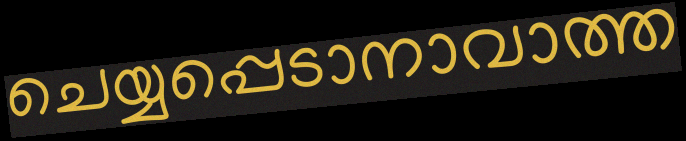
ചെയ്യപ്പെടാനാവാത്ത